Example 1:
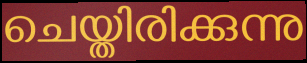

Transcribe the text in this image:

ചെയ്തിരിക്കുന്നു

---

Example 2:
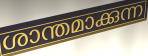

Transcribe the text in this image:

ശാന്തമാക്കുന്ന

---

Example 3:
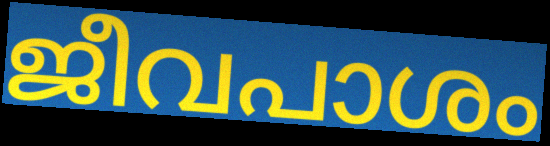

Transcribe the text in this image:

ജീവപാശം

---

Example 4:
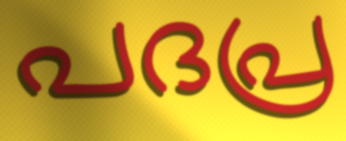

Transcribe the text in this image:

പദപ്ര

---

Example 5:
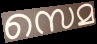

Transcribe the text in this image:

സെമ